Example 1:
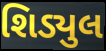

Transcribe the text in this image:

શિડ્યુલ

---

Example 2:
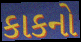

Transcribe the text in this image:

કાકનો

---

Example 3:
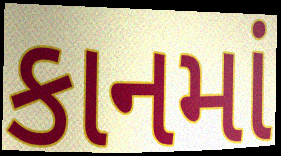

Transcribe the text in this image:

કાનમાં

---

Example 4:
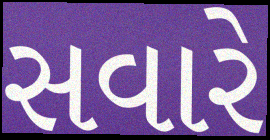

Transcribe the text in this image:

સવારે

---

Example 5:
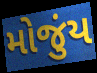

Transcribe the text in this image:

મોજુંય